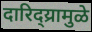
दारिद्य्रामुळे